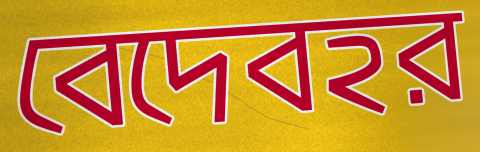
বেদেবহর